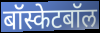
बॉस्केटबॉल